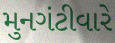
મુનગંટીવારે